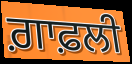
ਗ਼ਾਫ਼ਲੀ